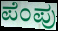
ಪೆಂಪು